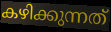
കഴിക്കുന്നത്